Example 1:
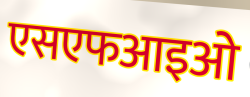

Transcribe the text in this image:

एसएफआइओ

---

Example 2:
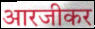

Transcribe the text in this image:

आरजीकर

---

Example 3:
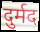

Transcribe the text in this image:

दुर्मद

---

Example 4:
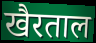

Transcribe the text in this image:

खैरताल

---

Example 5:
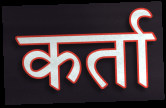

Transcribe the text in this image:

कर्ता